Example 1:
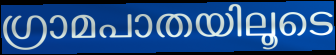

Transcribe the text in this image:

ഗ്രാമപാതയിലൂടെ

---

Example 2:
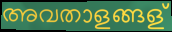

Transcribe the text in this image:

അവതാളങ്ങള്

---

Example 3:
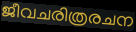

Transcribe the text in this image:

ജീവചരിത്രരചന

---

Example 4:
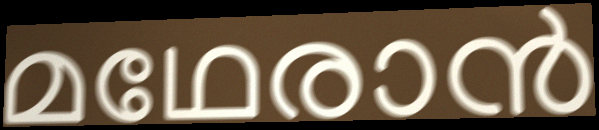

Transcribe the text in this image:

മഥേരാൻ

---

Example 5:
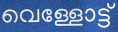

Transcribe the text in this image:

വെള്ളോട്ട്